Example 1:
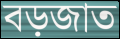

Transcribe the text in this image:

বড়জাত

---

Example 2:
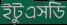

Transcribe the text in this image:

ইটুএসডি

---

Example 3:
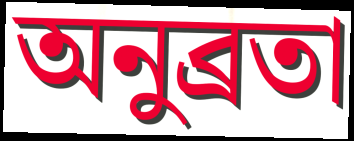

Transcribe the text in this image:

অনুব্রতা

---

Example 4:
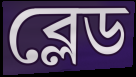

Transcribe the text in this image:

ব্লেড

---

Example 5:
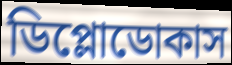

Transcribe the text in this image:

ডিপ্লোডোকাস